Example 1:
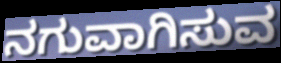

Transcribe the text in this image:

ನಗುವಾಗಿಸುವ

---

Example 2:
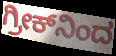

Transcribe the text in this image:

ಗ್ರೀಕ್‌ನಿಂದ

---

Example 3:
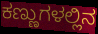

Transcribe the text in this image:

ಕಣ್ಣುಗಳಲ್ಲಿನ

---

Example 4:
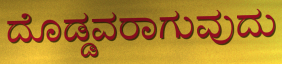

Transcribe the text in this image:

ದೊಡ್ಡವರಾಗುವುದು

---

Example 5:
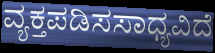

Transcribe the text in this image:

ವ್ಯಕ್ತಪಡಿಸಸಾಧ್ಯವಿದೆ